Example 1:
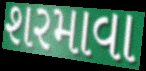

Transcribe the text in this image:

શરમાવા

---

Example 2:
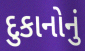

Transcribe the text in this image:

દુકાનોનું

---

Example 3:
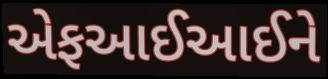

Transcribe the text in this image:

એફઆઈઆઈને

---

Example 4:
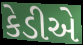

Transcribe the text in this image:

કેડીએ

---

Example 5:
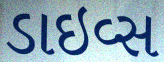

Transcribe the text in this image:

ડાઇવ્સ